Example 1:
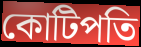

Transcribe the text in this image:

কোটিপতি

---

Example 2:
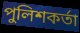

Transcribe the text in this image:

পুলিশকর্তা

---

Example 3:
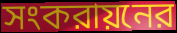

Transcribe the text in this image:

সংকরায়নের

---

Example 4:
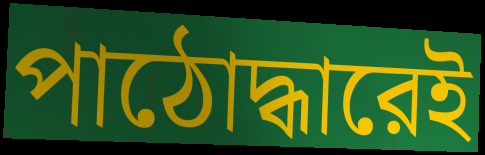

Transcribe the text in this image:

পাঠোদ্ধারেই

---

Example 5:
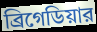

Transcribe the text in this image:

ব্রিগেডিয়ার